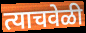
त्याचवेळी